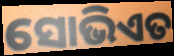
ସୋଭିଏତ